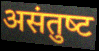
असंतुष्‍ट